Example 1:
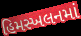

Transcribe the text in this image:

હિમસ્ખલનમાં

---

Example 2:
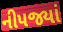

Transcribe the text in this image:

નીપજ્યાં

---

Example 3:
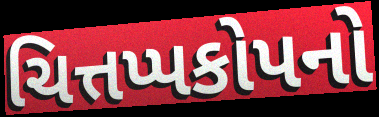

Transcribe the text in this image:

ચિત્તપ્પકોપનો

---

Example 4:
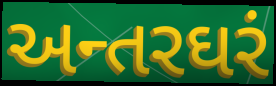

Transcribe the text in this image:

અન્તરઘરં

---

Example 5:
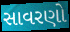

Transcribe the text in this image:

સાવરણો